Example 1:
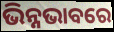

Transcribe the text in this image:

ଭିନ୍ନଭାବରେ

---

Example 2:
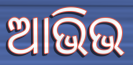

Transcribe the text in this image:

ଆଭିଭ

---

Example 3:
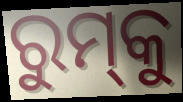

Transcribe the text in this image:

ରୁମ୍‍କୁ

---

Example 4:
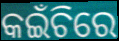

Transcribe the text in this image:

କଇଁଚିରେ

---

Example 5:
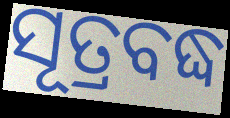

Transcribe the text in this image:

ସୂତ୍ରବଦ୍ଧ